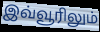
இவ்வூரிலும்